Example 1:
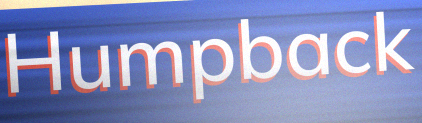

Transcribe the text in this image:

Humpback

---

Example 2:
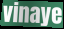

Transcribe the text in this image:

vinaye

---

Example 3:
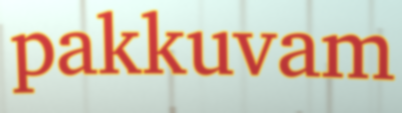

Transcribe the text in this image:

pakkuvam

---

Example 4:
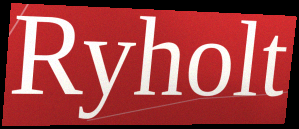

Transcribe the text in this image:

Ryholt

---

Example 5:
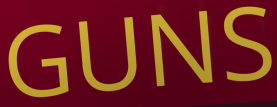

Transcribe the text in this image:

GUNS